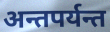
अन्तपर्यन्त